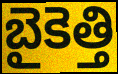
బైకెత్తి